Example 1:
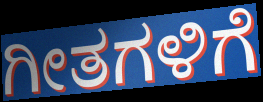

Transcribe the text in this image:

ಗೀತಗಳಿಗೆ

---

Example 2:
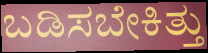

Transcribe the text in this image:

ಬಡಿಸಬೇಕಿತ್ತು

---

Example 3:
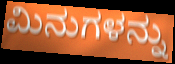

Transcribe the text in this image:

ಮಿನುಗಳನ್ನು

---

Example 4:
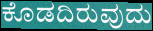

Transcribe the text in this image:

ಕೊಡದಿರುವುದು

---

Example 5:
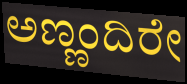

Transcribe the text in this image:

ಅಣ್ಣಂದಿರೇ